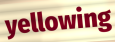
yellowing